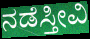
ನಡೆಸ್ತೀವಿ